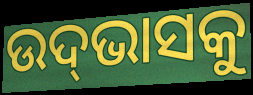
ଉଦ୍‌ଭାସକୁ